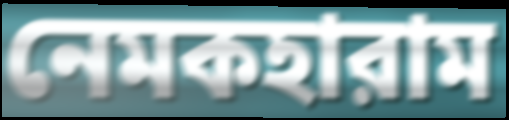
নেমকহারাম